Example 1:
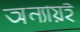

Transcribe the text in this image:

অন্যায়ই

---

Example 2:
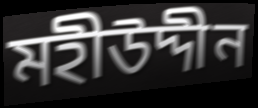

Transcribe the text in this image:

মহীউদ্দীন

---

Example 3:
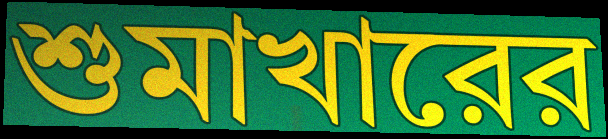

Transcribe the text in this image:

শুমাখারের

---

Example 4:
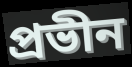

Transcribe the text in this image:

প্রভীন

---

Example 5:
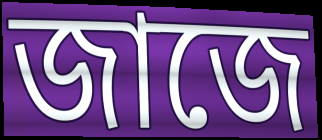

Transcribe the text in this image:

জাজে